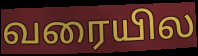
வரையில